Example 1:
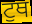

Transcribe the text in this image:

ਟੁਥ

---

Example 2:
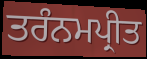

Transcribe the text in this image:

ਤਰੰਨਮਪ੍ਰੀਤ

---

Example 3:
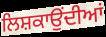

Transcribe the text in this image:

ਲਿਸ਼ਕਾਉਂਦੀਆਂ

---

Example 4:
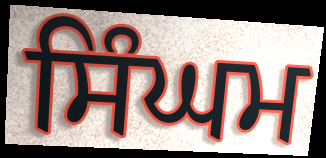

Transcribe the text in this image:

ਸਿੰਘਮ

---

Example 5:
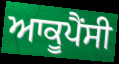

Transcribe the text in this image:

ਆਕੂਪੈਂਸੀ